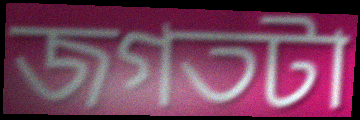
জগতটা